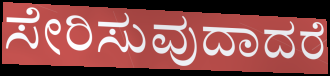
ಸೇರಿಸುವುದಾದರೆ